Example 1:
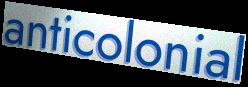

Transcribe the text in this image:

anticolonial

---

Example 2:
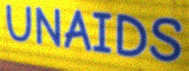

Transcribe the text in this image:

UNAIDS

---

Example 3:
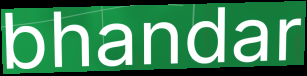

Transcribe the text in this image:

bhandar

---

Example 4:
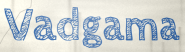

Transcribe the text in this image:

Vadgama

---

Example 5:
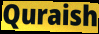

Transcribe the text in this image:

Quraish